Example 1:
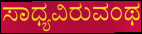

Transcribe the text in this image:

ಸಾಧ್ಯವಿರುವಂಥ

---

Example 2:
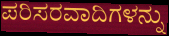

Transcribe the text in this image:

ಪರಿಸರವಾದಿಗಳನ್ನು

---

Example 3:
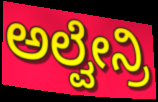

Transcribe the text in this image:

ಅಲ್ವೇನ್ರಿ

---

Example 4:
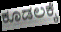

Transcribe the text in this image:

ಕೂಡಲಕ್ಕೆ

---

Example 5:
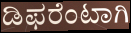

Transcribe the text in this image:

ಡಿಫರೆಂಟಾಗಿ